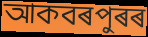
আকবৰপুৰৰ